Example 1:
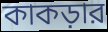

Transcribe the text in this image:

কাকড়ার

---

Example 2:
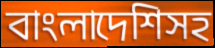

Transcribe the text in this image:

বাংলাদেশিসহ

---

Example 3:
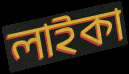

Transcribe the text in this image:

লাইকা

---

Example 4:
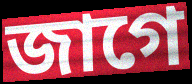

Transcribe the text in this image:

জাগে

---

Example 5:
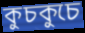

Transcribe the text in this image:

কুচকুচে